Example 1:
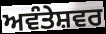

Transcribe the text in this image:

ਅਵੰਤੇਸ਼ਵਰ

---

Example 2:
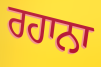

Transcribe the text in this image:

ਰਹਾਨਾ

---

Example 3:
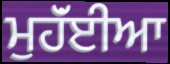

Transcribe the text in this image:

ਮੁਹੱਂਈਆ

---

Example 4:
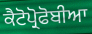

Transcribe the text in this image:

ਕੈਟੋਪ੍ਰੋਫੋਬੀਆ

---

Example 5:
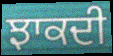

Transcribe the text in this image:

ਝਾਕਦੀ